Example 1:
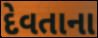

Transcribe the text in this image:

દેવતાના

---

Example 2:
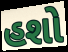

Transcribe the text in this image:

હશો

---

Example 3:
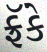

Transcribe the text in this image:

ફ્રૅંકે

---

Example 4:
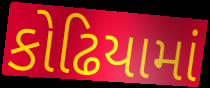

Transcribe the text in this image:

કોઢિયામાં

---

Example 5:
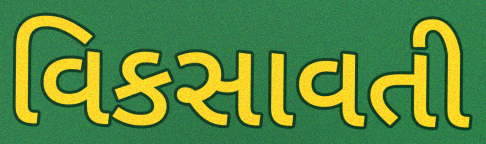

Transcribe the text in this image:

વિકસાવતી